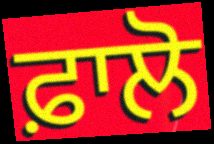
ਫ਼ਾਲੋ